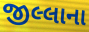
જીલ્લાના